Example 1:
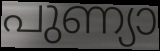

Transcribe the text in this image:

പുണ്യാ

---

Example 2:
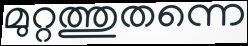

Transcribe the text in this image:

മുറ്റത്തുതന്നെ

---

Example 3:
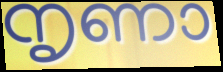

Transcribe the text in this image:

നൃണാ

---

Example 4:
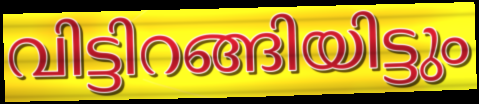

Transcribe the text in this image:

വിട്ടിറങ്ങിയിട്ടും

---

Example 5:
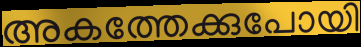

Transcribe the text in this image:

അകത്തേക്കുപോയി